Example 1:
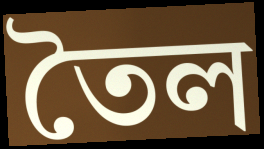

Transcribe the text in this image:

তৈল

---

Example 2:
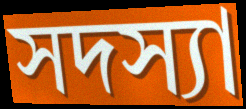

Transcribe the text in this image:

সদস্যা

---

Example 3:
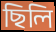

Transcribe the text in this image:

ছিলি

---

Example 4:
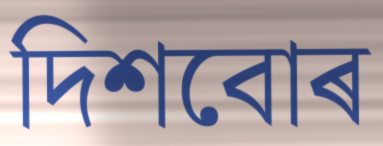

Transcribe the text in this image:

দিশবোৰ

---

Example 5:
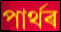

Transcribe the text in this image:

পাৰ্থৰ